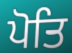
ਪੋਤਿ